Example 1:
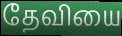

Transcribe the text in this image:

தேவியை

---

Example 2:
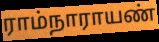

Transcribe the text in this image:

ராம்நாராயண்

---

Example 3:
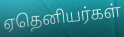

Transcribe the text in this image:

ஏதெனியர்கள்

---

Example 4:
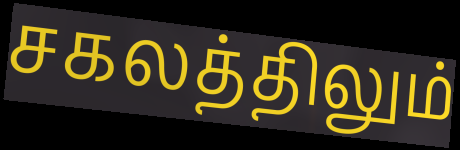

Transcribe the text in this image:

சகலத்திலும்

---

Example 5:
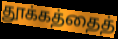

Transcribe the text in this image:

தூக்கத்தைத்